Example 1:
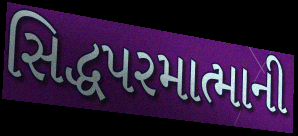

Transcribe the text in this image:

સિદ્ધપરમાત્માની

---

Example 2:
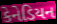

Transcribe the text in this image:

કેનેડિયન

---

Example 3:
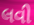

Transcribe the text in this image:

લવી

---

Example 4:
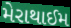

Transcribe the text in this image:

મેરાથાઈમ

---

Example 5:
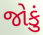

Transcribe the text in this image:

જોકું